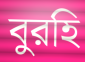
বুরহি